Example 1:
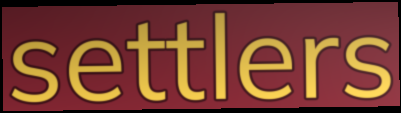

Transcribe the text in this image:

settlers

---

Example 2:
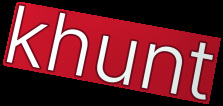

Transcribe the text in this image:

khunt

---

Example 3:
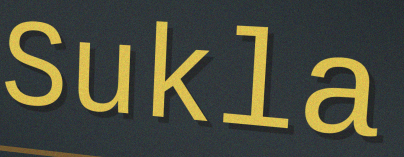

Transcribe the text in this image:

Sukla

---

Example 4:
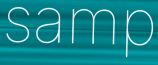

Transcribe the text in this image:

samp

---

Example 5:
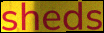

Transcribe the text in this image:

sheds